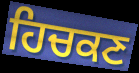
ਹਿਚਕਣ